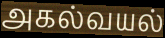
அகல்வயல்